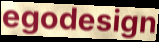
egodesign